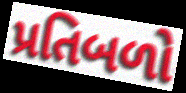
પ્રતિબળો